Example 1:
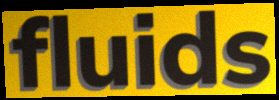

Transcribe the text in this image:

fluids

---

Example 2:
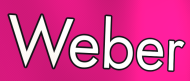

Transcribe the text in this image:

Weber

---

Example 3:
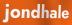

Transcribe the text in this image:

jondhale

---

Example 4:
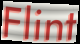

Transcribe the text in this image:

Flint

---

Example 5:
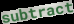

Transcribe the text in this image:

subtract